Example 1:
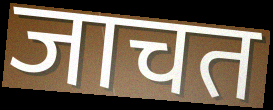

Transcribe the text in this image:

जाचत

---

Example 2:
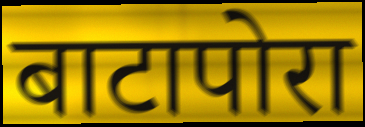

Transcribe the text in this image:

बाटापोरा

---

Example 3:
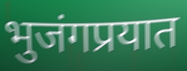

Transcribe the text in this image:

भुजंगप्रयात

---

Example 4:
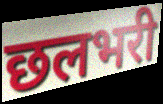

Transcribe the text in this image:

छलभरी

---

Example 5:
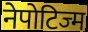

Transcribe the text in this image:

नेपोटिज्‍म